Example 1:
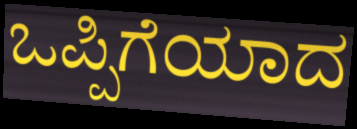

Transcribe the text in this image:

ಒಪ್ಪಿಗೆಯಾದ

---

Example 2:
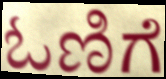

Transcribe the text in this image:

ಓಣಿಗೆ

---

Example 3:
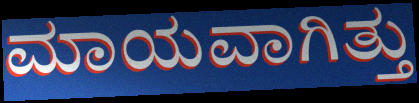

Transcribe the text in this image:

ಮಾಯವಾಗಿತ್ತು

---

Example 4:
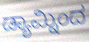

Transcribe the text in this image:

ಡ್ಯಾಮ್ನಿಂದ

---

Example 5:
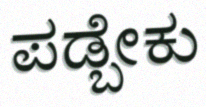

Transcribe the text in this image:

ಪಡ್ಬೇಕು